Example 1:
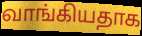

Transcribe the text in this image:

வாங்கியதாக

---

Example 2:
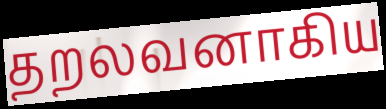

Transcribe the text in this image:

தறலவனாகிய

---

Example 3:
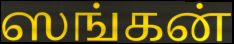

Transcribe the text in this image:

ஸங்கன்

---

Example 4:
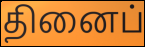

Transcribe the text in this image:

தினைப்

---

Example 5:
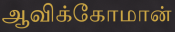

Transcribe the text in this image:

ஆவிக்கோமான்